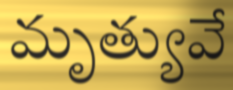
మృత్యువే